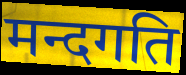
मन्दगति